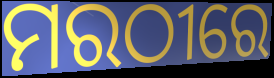
ମରଠୀରେ